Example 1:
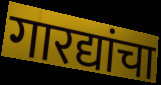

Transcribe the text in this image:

गारद्यांचा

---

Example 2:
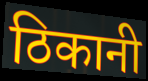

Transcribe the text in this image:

ठिकानी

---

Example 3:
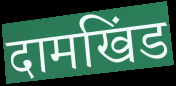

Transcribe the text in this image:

दामखिंड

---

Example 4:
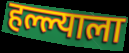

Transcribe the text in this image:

हल्ल्याला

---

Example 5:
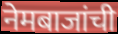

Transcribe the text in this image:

नेमबाजांची